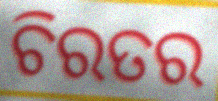
ଚିରତର